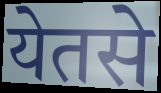
येतसे